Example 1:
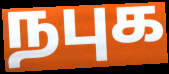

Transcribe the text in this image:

நபுக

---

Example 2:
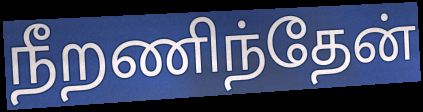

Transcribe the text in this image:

நீறணிந்தேன்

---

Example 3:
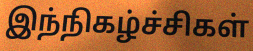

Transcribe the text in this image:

இந்நிகழ்ச்சிகள்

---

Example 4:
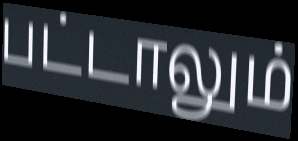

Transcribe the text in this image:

பட்டாலும்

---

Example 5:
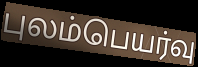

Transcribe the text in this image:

புலம்பெயர்வு